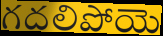
గదలిపోయె